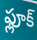
ఫ్లూక్